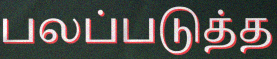
பலப்படுத்த